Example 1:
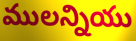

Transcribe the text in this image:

ములన్నియు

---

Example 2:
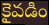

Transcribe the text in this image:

కైవడిం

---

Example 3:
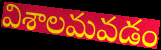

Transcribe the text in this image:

విశాలమవడం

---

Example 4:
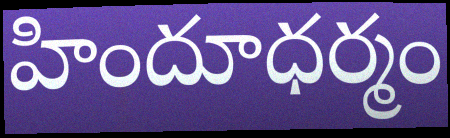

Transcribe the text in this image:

హిందూధర్మం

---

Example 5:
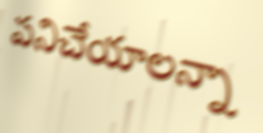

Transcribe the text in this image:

పనిచేయాలన్నా